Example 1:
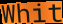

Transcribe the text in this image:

Whit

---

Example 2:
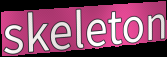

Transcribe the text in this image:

skeleton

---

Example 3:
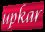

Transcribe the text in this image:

upkar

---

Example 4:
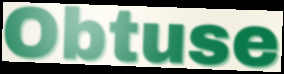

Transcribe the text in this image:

Obtuse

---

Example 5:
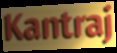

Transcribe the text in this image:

Kantraj